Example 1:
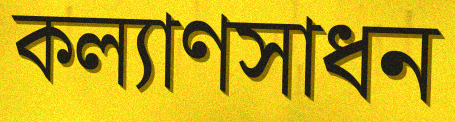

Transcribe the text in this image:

কল্যাণসাধন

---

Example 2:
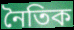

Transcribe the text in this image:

নৈতিক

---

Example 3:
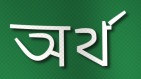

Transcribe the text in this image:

অৰ্থ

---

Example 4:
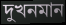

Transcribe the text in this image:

দুখনমান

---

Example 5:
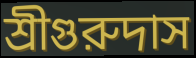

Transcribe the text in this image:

শ্ৰীগুৰুদাস